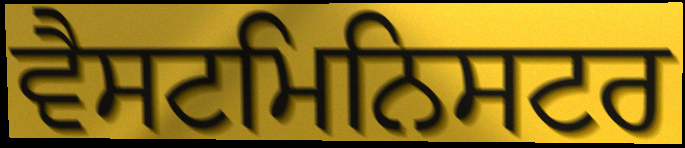
ਵੈਸਟਮਿਨਿਸਟਰ